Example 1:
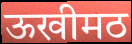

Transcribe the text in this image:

ऊखीमठ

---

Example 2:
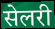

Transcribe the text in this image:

सेलरी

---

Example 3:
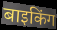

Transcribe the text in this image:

बाइकिंग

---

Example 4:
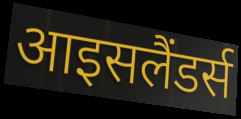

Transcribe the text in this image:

आइसलैंडर्स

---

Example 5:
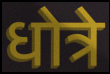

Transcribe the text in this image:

धोत्रे